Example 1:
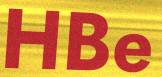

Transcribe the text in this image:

HBe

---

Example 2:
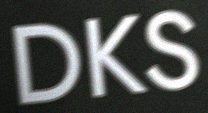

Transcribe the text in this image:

DKS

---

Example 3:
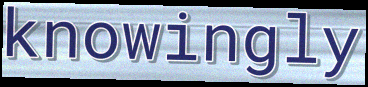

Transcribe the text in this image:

knowingly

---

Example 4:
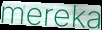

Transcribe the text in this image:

mereka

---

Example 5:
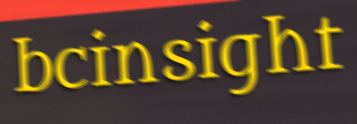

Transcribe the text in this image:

bcinsight